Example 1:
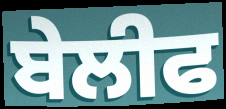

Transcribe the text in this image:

ਬੇਲੀਫ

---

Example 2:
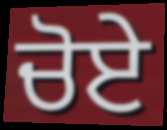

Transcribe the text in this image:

ਚੋਏ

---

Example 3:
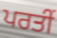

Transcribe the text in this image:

ਪਰਤੀਂ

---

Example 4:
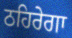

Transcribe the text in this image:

ਠਹਿਰੇਗਾ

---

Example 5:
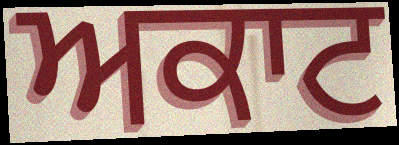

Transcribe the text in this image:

ਅਕਾਟ